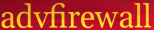
advfirewall